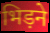
भिड़ने